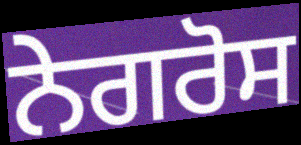
ਨੇਗਰੋਸ